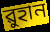
ৱুহান